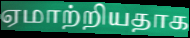
ஏமாற்றியதாக